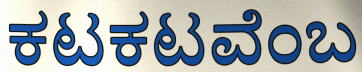
ಕಟಕಟವೆಂಬ